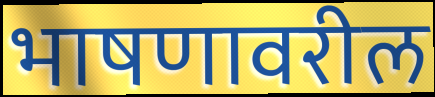
भाषणावरील